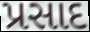
પ્રસાદ